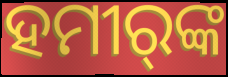
ହମୀର୍‍ଙ୍କ